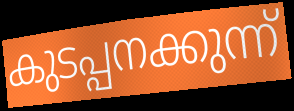
കുടപ്പനക്കുന്ന്